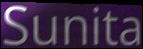
Sunita